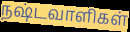
நஷ்டவாளிகள்